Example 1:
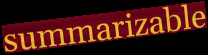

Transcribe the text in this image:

summarizable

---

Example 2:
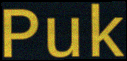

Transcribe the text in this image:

Puk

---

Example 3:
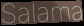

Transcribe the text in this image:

Salama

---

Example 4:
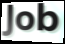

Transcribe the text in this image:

Job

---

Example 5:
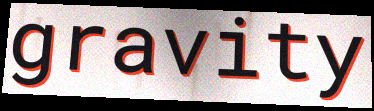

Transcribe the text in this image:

gravity